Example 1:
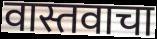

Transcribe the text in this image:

वास्तवाचा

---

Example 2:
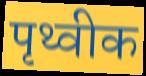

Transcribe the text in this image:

पृथ्वीक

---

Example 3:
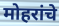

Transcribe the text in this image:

मोहरांचे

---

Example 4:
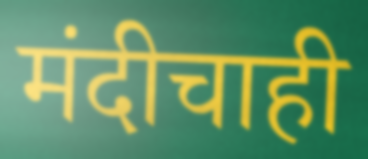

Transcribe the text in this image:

मंदीचाही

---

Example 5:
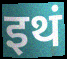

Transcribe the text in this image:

इथं